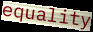
equality